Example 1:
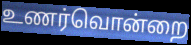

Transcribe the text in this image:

உணர்வொன்றை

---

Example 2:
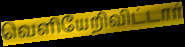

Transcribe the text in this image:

வெளியேறிவிட்டார்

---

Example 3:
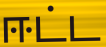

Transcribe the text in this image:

ஈட்ட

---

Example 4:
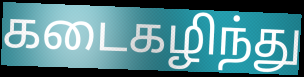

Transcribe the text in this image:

கடைகழிந்து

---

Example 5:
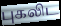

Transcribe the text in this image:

புகலிட